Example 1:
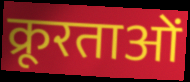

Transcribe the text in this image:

क्रूरताओं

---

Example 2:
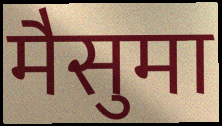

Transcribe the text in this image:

मैसुमा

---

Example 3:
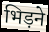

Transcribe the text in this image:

भिड़ने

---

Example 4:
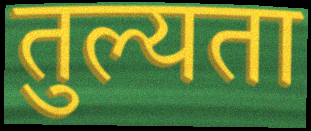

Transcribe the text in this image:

तुल्यता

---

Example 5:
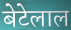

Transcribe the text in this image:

बेटेलाल